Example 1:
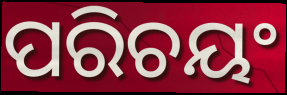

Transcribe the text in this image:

ପରିଚୟଂ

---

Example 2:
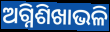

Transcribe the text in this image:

ଅଗ୍ନିଶିଖାଭଳି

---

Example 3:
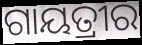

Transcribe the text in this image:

ଗାୟତ୍ରୀର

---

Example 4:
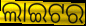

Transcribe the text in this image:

ଲାଇଟର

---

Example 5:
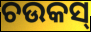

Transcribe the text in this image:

ଚଉକସ୍